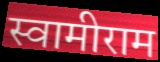
स्वामीराम